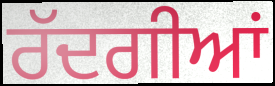
ਰੱਦਗੀਆਂ